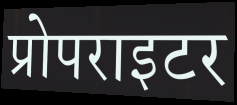
प्रोपराइटर